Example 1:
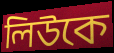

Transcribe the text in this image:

লিউকে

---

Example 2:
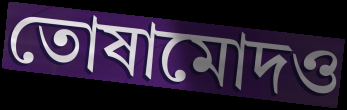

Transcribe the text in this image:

তোষামোদও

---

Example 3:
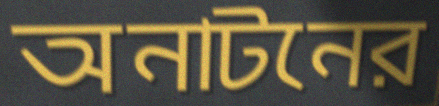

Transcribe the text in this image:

অনাটনের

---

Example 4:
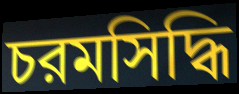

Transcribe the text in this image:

চরমসিদ্ধি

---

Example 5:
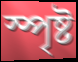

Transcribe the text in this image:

স্পৃষ্ট